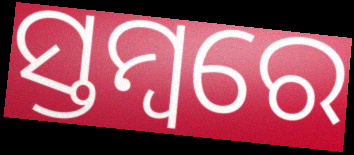
ସ୍ତମ୍ବରେ